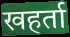
खहर्ता